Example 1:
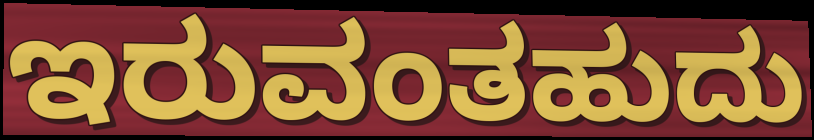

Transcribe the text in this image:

ಇರುವಂತಹುದು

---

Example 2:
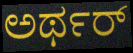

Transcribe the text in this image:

ಅರ್ಥರ್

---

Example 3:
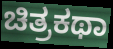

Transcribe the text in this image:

ಚಿತ್ರಕಥಾ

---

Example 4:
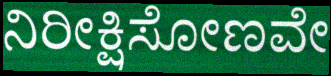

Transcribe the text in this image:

ನಿರೀಕ್ಷಿಸೋಣವೇ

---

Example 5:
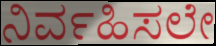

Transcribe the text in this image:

ನಿರ್ವಹಿಸಲೇ